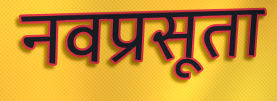
नवप्रसूता